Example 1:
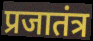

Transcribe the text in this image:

प्रजातंत्र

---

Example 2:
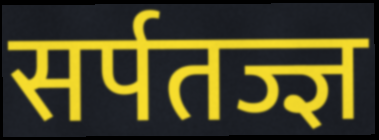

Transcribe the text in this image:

सर्पतज्ज्ञ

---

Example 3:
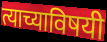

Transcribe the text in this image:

त्याच्याविषयी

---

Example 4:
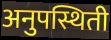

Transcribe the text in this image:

अनुपस्थिती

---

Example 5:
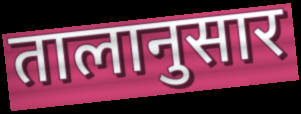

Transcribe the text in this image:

तालानुसार